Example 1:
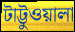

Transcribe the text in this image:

টাট্টুওয়ালা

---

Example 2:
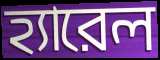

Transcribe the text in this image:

হ্যারেল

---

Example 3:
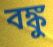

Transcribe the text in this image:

বঙ্কু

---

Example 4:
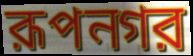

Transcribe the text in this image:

রূপনগর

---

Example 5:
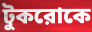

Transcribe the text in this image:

টুকরোকে